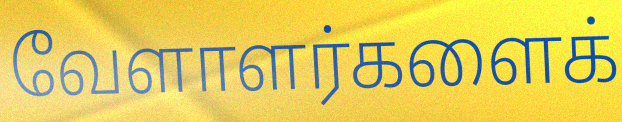
வேளாளர்களைக்